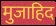
मुजाहिद